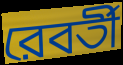
রেবর্তী